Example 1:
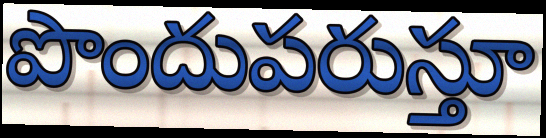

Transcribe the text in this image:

పొందుపరుస్తూ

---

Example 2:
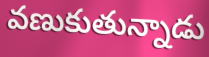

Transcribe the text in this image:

వణుకుతున్నాడు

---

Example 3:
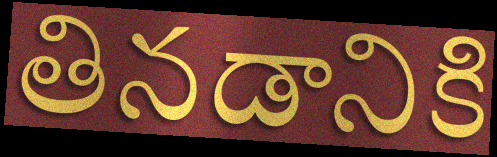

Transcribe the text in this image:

తినడానికి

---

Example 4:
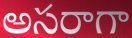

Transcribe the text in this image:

అసరాగా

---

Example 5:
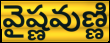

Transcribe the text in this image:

వైష్ణవుణ్ణి